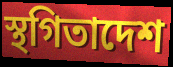
স্থগিতাদেশ